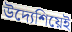
উদ্যেশিয়েই